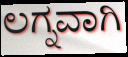
ಲಗ್ನವಾಗಿ